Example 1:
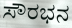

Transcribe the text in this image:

ಸೌರಭನ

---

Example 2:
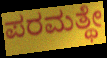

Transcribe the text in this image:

ಪರಮತ್ಥೇ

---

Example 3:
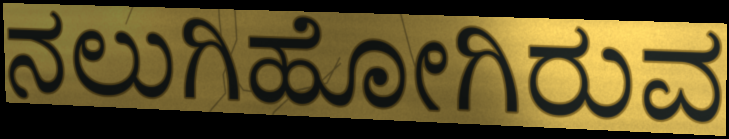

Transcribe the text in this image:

ನಲುಗಿಹೋಗಿರುವ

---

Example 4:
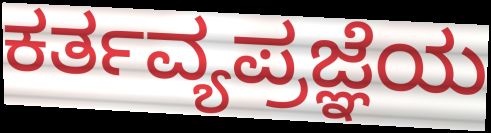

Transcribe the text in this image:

ಕರ್ತವ್ಯಪ್ರಜ್ಞೆಯ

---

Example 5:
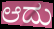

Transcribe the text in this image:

ಆದು